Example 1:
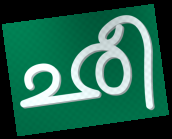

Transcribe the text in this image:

ഛീ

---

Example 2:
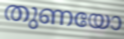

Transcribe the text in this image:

തുണയോ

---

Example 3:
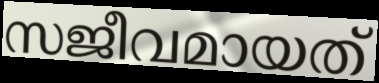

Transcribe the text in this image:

സജീവമായത്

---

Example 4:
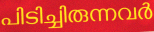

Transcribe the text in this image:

പിടിച്ചിരുന്നവർ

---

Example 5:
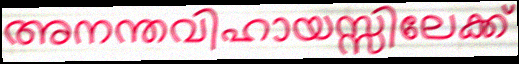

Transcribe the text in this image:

അനന്തവിഹായസ്സിലേക്ക്